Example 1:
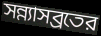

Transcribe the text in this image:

সন্ন্যাসব্রতের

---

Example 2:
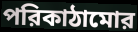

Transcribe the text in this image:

পরিকাঠামোর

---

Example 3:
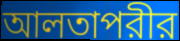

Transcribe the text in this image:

আলতাপরীর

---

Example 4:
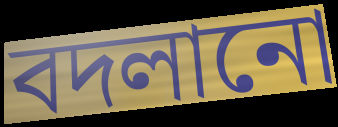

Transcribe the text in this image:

বদলানো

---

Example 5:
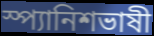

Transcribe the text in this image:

স্প্যানিশভাষী